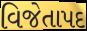
વિજેતાપદ